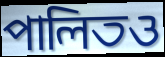
পালিতও